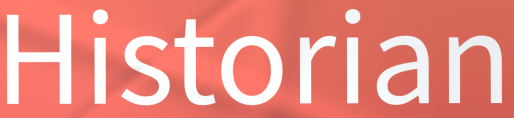
Historian